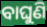
ବାଘୁଣି